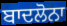
ਬਾਦਲੋਨਾ